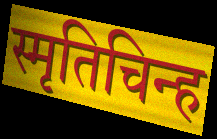
स्मृतिचिन्ह